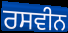
ਰਸਵੀਨ